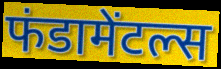
फंडामेंटल्स